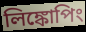
লিঙ্কোপিং